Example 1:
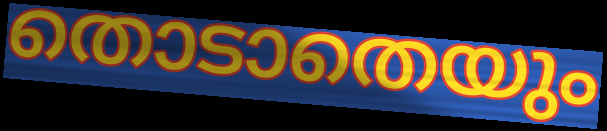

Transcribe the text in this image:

തൊടാതെയും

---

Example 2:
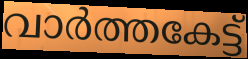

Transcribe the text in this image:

വാർത്തകേട്ട്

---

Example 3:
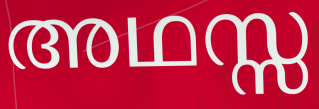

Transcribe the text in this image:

അഥസ്സ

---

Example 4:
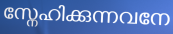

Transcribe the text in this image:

സ്നേഹിക്കുന്നവനേ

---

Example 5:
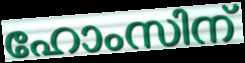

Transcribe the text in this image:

ഹോംസിന്